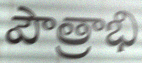
పౌత్రాభి